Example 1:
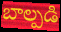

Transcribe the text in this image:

బాల్పడి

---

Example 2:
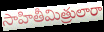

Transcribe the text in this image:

సాహితీమిత్రులారా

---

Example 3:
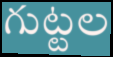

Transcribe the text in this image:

గుట్టల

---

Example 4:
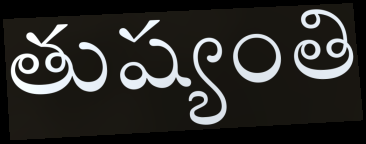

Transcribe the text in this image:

తుష్యంతి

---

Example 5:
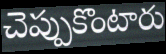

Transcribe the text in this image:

చెప్పుకొంటారు